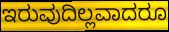
ಇರುವುದಿಲ್ಲವಾದರೂ